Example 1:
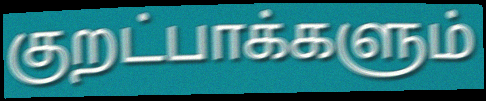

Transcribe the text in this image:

குறட்பாக்களும்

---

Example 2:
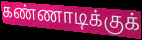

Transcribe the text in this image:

கண்ணாடிக்குக்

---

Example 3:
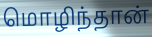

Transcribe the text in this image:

மொழிந்தான்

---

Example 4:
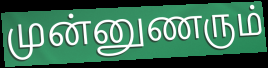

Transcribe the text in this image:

முன்னுணரும்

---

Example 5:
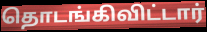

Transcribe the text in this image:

தொடங்கிவிட்டார்